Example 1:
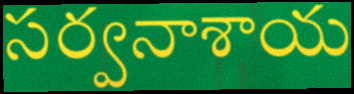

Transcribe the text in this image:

సర్వనాశాయ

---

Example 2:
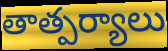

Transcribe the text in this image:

తాత్పర్యాలు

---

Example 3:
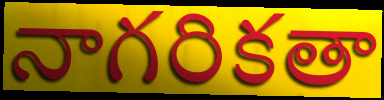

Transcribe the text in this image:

నాగరికతా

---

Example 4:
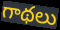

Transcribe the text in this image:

గాథలు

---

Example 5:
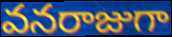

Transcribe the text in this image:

వనరాజుగా